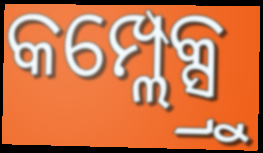
କମ୍ପ୍ଲେକ୍ସ୍ରୁ